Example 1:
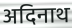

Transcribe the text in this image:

अदिनाथ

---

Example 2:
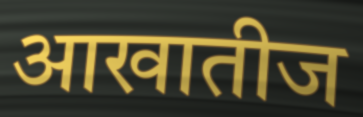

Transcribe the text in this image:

आखातीज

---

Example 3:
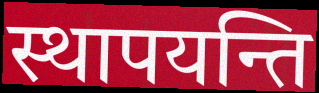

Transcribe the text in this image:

स्थापयन्ति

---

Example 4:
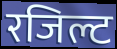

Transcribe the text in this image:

रजिल्ट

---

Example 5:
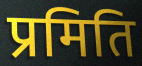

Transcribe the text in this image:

प्रमिति